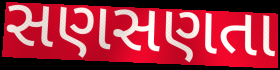
સણસણતા